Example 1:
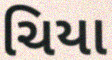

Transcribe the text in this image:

ચિયા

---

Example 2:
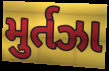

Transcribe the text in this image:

મુર્તઝા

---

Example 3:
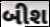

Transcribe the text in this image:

બીશ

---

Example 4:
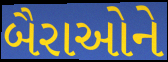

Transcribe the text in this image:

બૈરાઓને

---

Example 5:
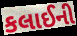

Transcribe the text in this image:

કલાઈની